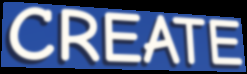
CREATE